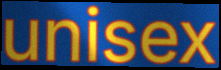
unisex